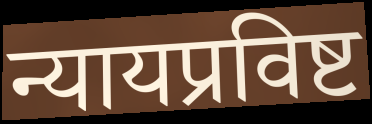
न्यायप्रविष्ट